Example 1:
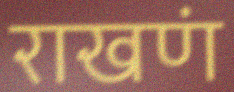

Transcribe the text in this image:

राखणं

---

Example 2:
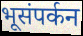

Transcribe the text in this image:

भूसंपर्कन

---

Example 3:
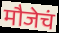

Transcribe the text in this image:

मौजेचं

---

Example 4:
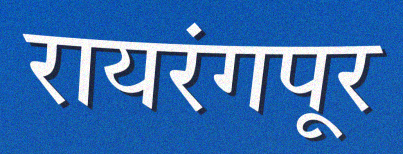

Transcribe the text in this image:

रायरंगपूर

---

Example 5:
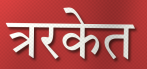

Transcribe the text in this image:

त्ररकेत